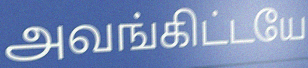
அவங்கிட்டயே